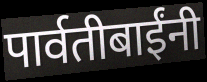
पार्वतीबाईंनी